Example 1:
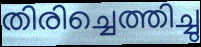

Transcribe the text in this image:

തിരിച്ചെത്തിച്ചു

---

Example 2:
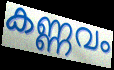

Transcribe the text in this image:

കണ്ണവം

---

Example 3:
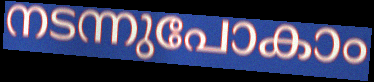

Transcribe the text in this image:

നടന്നുപോകാം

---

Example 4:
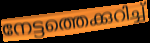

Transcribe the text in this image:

നേട്ടത്തെക്കുറിച്ച്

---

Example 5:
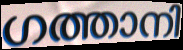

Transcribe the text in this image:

ഗത്താനി